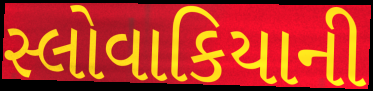
સ્લોવાકિયાની